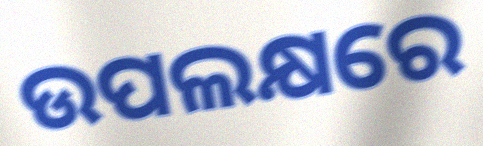
ଉପଲକ୍ଷରେ